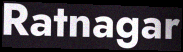
Ratnagar